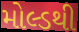
મોલ્ડથી